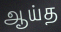
ஆய்த